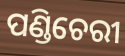
ପଣ୍ଡିଚେରୀ